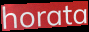
horata